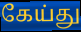
கேய்து